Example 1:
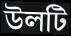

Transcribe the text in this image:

উলটি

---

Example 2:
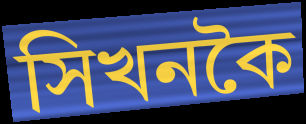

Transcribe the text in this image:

সিখনকৈ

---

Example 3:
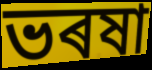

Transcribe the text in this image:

ভৰষা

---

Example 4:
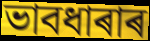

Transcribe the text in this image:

ভাবধাৰাৰ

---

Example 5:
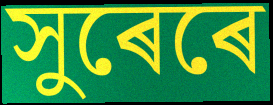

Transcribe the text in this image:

সুৰেৰে